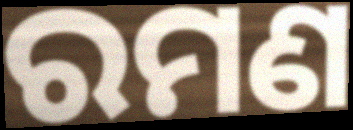
ରମଣ